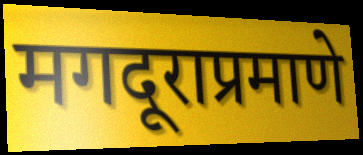
मगदूराप्रमाणे